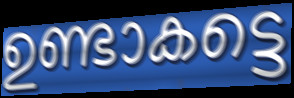
ഉണ്ടാകട്ടെ